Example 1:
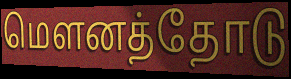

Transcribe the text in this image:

மௌனத்தோடு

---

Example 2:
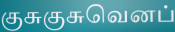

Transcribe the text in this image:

குசுகுசுவெனப்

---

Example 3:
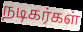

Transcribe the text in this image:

நடிகர்கள்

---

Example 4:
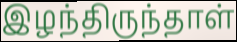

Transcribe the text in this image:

இழந்திருந்தாள்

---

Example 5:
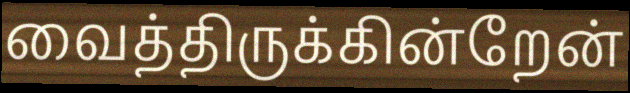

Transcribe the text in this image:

வைத்திருக்கின்றேன்